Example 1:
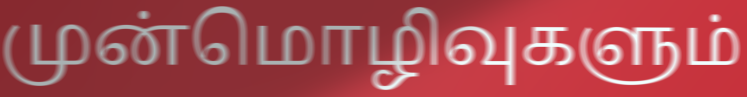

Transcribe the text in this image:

முன்மொழிவுகளும்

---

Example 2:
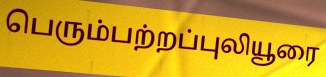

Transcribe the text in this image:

பெரும்பற்றப்புலியூரை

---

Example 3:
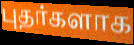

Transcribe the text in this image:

புதர்களாக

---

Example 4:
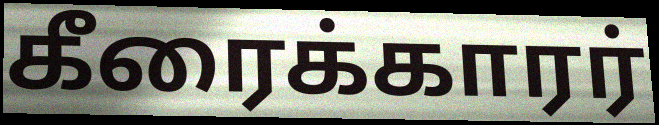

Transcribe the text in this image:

கீரைக்காரர்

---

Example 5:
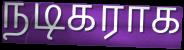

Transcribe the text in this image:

நடிகராக